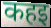
कहइ